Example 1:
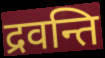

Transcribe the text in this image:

द्रवन्ति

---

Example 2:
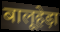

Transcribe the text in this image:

बालूहेड़ा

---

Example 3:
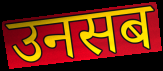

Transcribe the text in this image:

उनसब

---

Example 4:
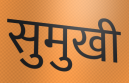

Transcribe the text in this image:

सुमुखी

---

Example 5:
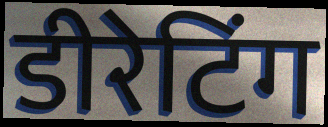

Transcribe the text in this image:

डीरेटिंग